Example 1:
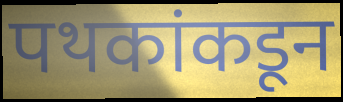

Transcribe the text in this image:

पथकांकडून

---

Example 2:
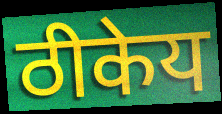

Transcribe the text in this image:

ठीकेय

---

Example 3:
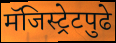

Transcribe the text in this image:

मॅजिस्ट्रेटपुढे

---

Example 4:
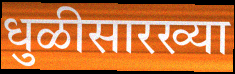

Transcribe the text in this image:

धुळीसारख्या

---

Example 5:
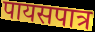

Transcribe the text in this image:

पायसपात्र